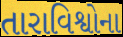
તારાવિશ્વોના